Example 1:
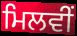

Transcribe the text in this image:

ਮਿਲਵੀਂ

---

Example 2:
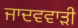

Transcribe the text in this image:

ਜਾਦਵਵਾੜੀ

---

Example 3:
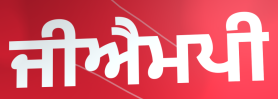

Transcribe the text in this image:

ਜੀਐਮਪੀ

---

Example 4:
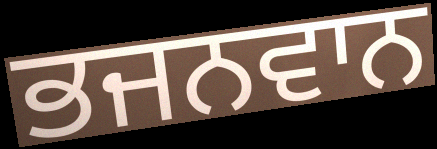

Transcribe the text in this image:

ਭਜਨਵਾਨ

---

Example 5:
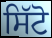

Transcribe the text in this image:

ਸਿੱਟੋ